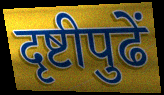
दृष्टीपुढें